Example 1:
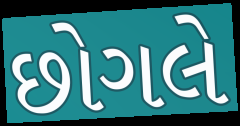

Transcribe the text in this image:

છોગલે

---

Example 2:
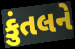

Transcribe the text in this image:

કુંતલને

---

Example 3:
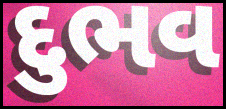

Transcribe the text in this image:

દુભવ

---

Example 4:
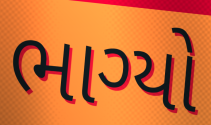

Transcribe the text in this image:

ભાગ્યો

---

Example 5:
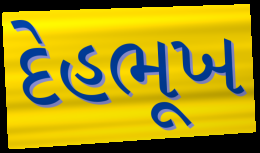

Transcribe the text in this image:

દેહભૂખ